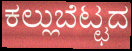
ಕಲ್ಲುಬೆಟ್ಟದ